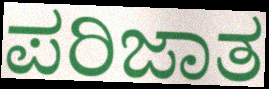
ಪರಿಜಾತ